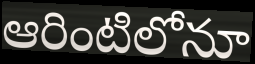
ఆరింటిలోనూ